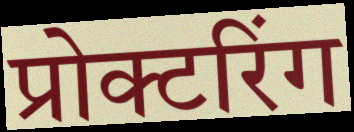
प्रोक्टरिंग